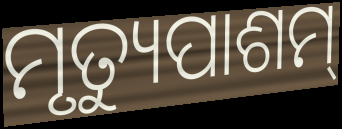
ମୃତ୍ୟୁପାଶମ୍